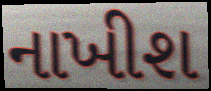
નાખીશ